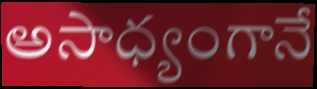
అసాధ్యంగానే